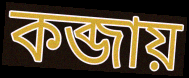
কব্জায়